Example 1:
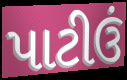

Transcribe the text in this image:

પાટીઉં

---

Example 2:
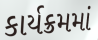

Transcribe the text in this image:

કાર્યક્રમમાં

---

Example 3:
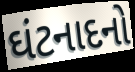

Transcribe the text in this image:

ઘંટનાદનો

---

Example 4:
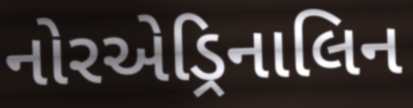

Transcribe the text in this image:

નોરએડ્રિનાલિન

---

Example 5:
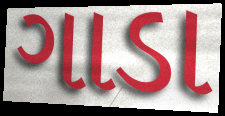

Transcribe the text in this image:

ગાડા